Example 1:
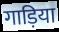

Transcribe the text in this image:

गाड़िया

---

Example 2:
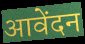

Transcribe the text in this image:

आवेंदन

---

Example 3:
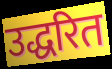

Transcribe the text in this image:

उद्धरित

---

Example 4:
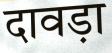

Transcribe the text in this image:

दावड़ा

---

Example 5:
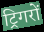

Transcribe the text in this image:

ट्रिगरों